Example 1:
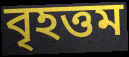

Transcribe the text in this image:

বৃহত্তম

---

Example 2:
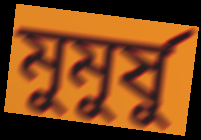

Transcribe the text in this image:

মুমুর্ষু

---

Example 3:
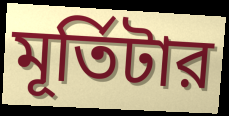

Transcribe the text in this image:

মূর্তিটার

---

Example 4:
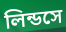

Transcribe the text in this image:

লিন্ডসে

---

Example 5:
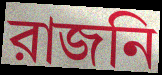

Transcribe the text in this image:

রাজনি